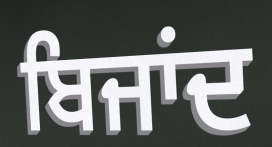
ਬਿਜਾਂਦ